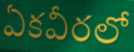
ఏకవీరలో